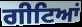
ਗੀਟਿਆਂ